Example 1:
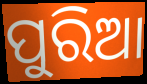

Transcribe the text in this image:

ପୁରିଆ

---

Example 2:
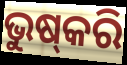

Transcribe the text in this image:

ଭୁଷ୍‍କରି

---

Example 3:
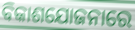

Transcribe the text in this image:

ବିକାଶଯୋଜନାରେ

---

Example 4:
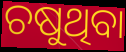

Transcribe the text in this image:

ଚଷୁଥିବା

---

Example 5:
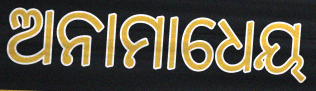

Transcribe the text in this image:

ଅନାମାଧେୟ